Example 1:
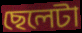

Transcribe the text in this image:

ছেলেটা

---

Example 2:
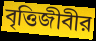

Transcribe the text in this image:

বৃত্তিজীবীর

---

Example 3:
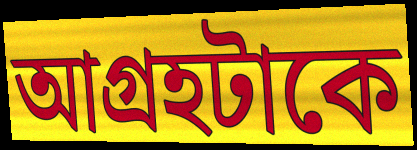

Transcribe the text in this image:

আগ্রহটাকে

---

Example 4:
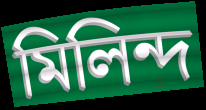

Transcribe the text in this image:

মিলিন্দ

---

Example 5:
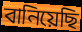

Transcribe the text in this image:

বানিয়েছি